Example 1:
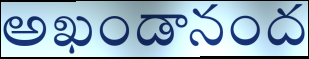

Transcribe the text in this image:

అఖండానంద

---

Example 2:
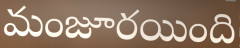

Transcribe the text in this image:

మంజూరయింది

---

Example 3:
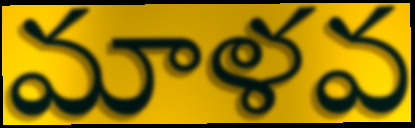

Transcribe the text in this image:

మాళవ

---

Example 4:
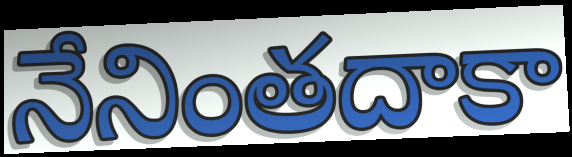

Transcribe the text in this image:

నేనింతదాకా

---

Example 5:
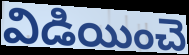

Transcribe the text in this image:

విడియించె